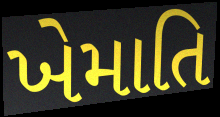
ખેમાતિ